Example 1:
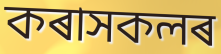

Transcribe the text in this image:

কৰাসকলৰ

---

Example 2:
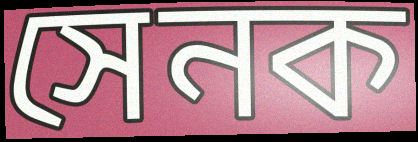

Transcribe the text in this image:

সেনক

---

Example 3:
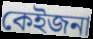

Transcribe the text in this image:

কেইজনা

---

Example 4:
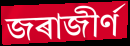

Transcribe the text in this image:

জৰাজীৰ্ণ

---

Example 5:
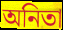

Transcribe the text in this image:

অনিতা